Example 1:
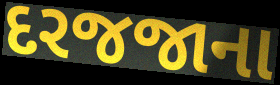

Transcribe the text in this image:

દરજજાના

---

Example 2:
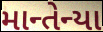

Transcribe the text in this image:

માન્તેન્યા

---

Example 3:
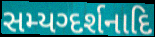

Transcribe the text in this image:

સમ્યગ્દર્શનાદિ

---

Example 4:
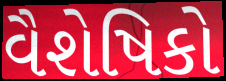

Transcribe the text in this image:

વૈશેષિકો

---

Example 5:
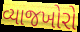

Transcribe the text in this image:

વ્યાજખોરો